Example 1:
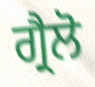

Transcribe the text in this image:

ਗ੍ਰੈਲੋ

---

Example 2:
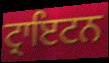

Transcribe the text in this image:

ਟ੍ਰਾਇਟਨ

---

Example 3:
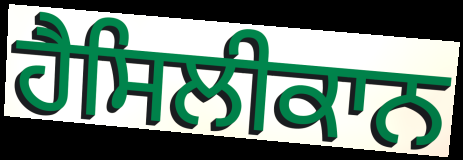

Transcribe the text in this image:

ਹੈਸਿਲੀਕਾਨ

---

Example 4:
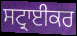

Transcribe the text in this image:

ਸਟ੍ਰਾਈਕਰ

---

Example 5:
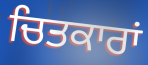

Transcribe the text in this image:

ਚਿਤਕਾਰਾਂ